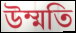
উম্মতি